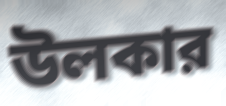
উলকার